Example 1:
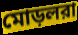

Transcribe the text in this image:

মোড়লরা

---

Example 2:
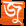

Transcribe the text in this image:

জু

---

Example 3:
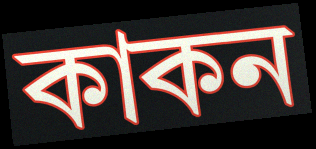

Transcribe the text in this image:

কাকন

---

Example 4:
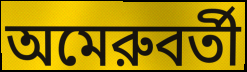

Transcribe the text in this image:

অমেরুবর্তী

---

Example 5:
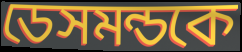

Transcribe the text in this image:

ডেসমন্ডকে